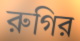
রুগির